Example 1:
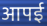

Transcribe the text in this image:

आपई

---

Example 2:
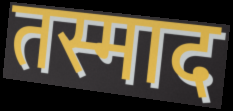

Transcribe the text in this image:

तस्माद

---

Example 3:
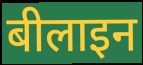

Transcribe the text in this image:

बीलाइन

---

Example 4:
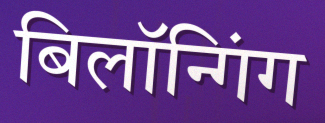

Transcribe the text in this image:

बिलॉन्गिंग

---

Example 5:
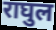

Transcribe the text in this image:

राघुल